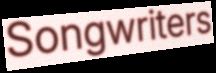
Songwriters